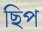
ছিপ